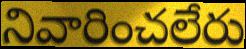
నివారించలేరు